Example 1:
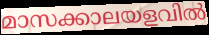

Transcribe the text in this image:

മാസക്കാലയളവിൽ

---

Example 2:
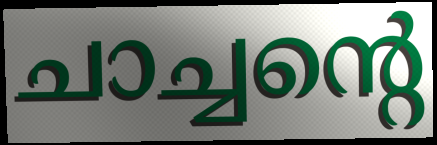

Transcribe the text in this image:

ചാച്ചന്റെ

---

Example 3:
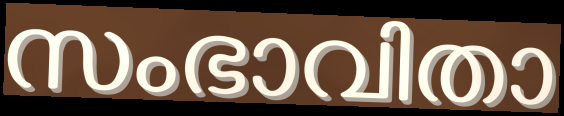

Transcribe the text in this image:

സംഭാവിതാ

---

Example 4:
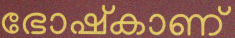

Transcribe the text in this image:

ഭോഷ്കാണ്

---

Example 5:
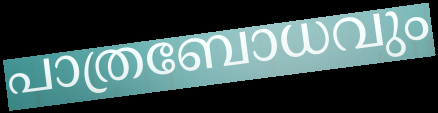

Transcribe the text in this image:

പാത്രബോധവും